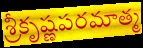
శ్రీకృష్ణపరమాత్మ